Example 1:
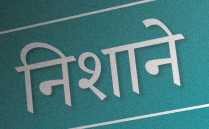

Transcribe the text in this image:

निशाने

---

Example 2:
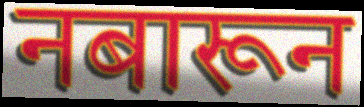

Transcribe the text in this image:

नबारून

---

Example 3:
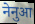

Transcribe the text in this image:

नेनुआ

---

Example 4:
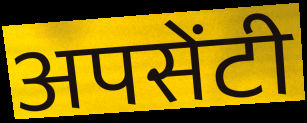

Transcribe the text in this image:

अपसेंटी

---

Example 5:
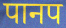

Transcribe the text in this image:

पानप